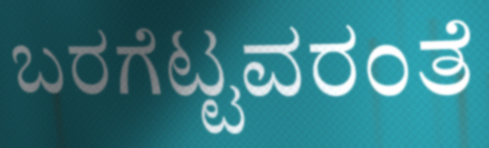
ಬರಗೆಟ್ಟವರಂತೆ